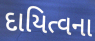
દાયિત્વના